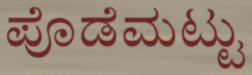
ಪೊಡೆಮಟ್ಟು